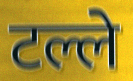
टल्ले